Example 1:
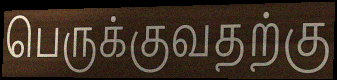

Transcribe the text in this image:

பெருக்குவதற்கு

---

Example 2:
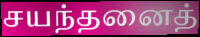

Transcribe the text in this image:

சயந்தனைத்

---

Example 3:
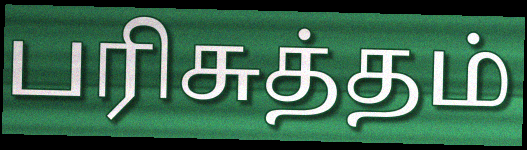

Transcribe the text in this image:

பரிசுத்தம்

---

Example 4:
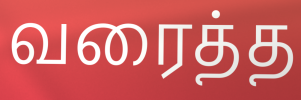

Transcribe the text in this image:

வரைத்த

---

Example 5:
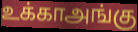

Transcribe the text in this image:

உக்காஅங்கு